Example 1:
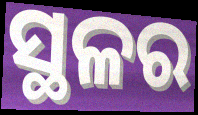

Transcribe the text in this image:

ସ୍ଥଳର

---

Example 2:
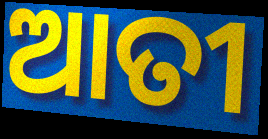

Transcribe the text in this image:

ଆତୀ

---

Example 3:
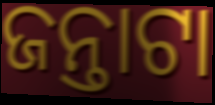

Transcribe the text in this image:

ଜନ୍ତାଟା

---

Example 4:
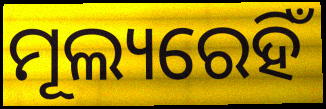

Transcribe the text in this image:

ମୂଲ୍ୟରେହିଁ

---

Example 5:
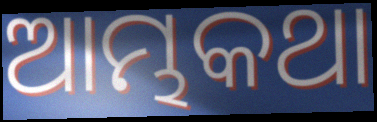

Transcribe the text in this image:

ଆମ୍ଭକଥା